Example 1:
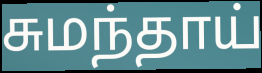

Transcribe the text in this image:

சுமந்தாய்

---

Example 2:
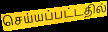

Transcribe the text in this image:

செய்யப்பட்டதில்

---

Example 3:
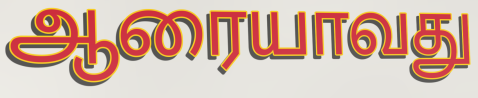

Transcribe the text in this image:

ஆரையாவது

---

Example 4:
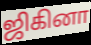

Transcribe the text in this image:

ஜிகினா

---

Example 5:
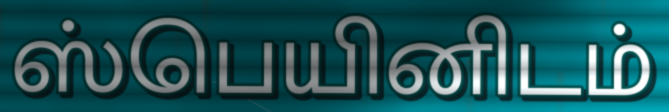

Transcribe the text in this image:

ஸ்பெயினிடம்